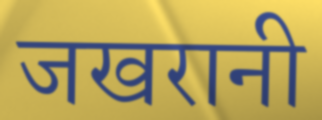
जखरानी